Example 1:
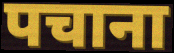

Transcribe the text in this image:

पचाना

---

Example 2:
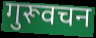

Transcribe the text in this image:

गुरूवचन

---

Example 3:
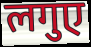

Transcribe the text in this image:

लगुए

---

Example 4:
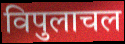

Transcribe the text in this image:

विपुलाचल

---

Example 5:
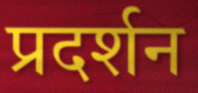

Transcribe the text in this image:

प्रदर्शन